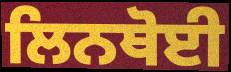
ਲਿਨਥੋਈ